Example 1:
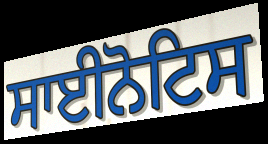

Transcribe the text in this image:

ਸਾਈਨੋਟਿਸ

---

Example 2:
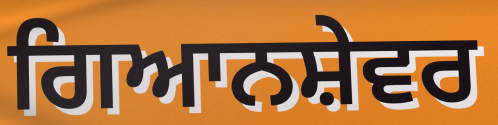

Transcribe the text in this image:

ਗਿਆਨਸ਼ੇਵਰ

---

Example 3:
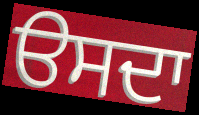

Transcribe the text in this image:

ੳਸਦਾ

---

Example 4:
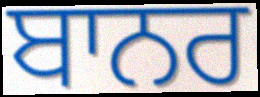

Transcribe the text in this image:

ਬਾਨਰ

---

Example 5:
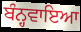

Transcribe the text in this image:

ਬੰਨ੍ਹਵਾਇਆ